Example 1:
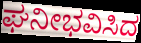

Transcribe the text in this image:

ಘನೀಭವಿಸಿದ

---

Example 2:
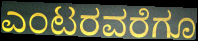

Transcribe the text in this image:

ಎಂಟರವರೆಗೂ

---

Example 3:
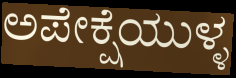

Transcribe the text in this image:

ಅಪೇಕ್ಷೆಯುಳ್ಳ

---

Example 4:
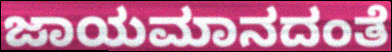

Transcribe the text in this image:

ಜಾಯಮಾನದಂತೆ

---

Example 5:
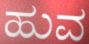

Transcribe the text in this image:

ಹುವ